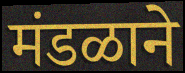
मंडळाने